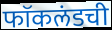
फॉकलंडची